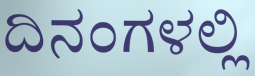
ದಿನಂಗಳಲ್ಲಿ